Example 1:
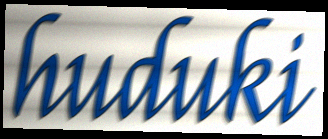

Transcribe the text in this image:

huduki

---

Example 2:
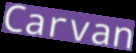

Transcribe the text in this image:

Carvan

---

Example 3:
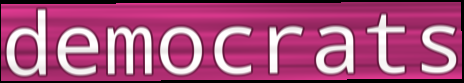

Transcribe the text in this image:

democrats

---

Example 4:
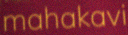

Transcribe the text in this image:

mahakavi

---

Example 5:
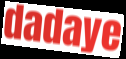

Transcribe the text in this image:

dadaye